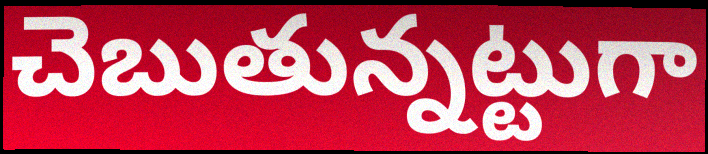
చెబుతున్నట్టుగా